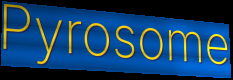
Pyrosome